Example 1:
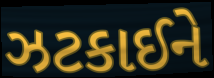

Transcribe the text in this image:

ઝટકાઈને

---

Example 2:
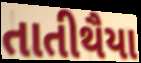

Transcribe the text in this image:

તાતીથૈયા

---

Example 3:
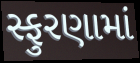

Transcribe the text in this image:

સ્ફુરણામાં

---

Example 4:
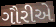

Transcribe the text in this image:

ગૌરીએ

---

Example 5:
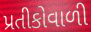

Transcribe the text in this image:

પ્રતીકોવાળી